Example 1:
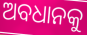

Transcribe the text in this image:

ଅବଧାନକୁ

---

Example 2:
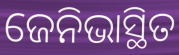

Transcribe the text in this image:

ଜେନିଭାସ୍ଥିତ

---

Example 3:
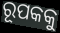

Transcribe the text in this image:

ରୂପକକୁ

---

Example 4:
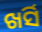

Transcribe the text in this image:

ଖର୍ସି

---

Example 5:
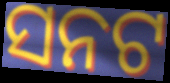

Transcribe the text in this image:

ସନଟ